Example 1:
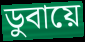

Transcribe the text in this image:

ডুবায়ে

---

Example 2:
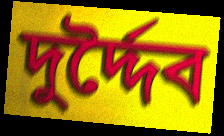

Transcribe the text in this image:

দুর্দ্দৈব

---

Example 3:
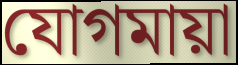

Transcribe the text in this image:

যোগমায়া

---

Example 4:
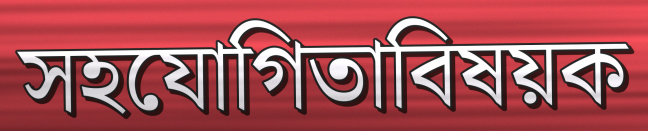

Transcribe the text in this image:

সহযোগিতাবিষয়ক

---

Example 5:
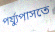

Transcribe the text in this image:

পর্য্যুপাসতে